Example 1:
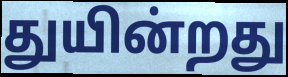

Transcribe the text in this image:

துயின்றது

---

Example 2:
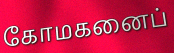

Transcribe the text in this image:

கோமகனைப்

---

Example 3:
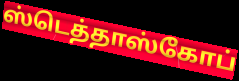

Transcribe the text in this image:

ஸ்டெத்தாஸ்கோப்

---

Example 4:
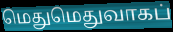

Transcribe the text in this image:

மெதுமெதுவாகப்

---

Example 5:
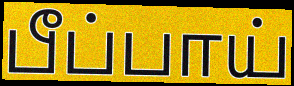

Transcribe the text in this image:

பீப்பாய்